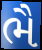
ભૈ